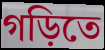
গড়িতে